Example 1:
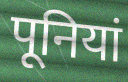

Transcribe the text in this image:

पूनियां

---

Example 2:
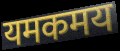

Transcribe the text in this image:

यमकमय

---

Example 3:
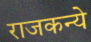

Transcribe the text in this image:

राजकन्ये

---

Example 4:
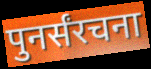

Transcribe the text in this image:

पुनर्संरचना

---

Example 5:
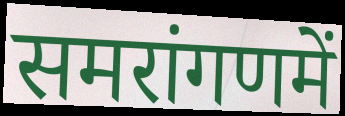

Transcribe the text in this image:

समरांगणमें